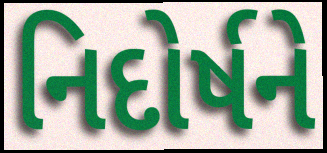
નિદોર્ષને